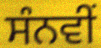
ਸੰਨਵੀਂ